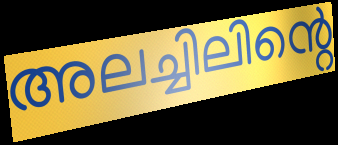
അലച്ചിലിന്റെ